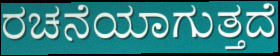
ರಚನೆಯಾಗುತ್ತದೆ